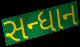
સન્ધાન